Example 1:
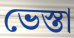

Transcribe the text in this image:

ভেস্তা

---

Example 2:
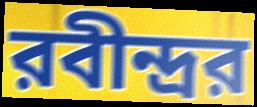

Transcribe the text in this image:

রবীন্দ্রর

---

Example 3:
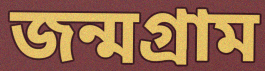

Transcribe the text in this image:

জন্মগ্রাম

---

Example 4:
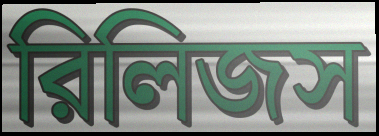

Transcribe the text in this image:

রিলিজস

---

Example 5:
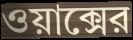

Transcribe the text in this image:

ওয়াক্সের